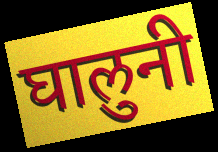
घालुनी